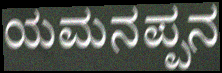
ಯಮನಪ್ಪನ